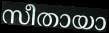
സീതായാ